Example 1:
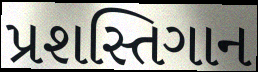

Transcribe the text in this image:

પ્રશસ્તિગાન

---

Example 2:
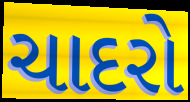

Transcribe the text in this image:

ચાદરો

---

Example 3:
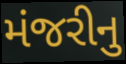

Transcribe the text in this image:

મંજરીનુ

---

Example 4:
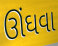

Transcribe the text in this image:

ઊંઘવા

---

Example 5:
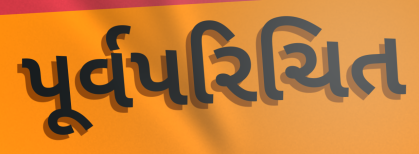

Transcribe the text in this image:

પૂર્વપરિચિત